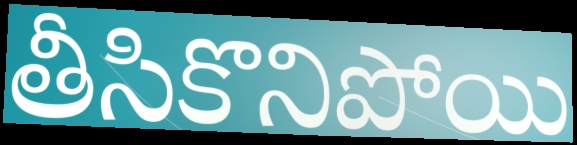
తీసికొనిపోయి